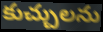
కుచ్చులను